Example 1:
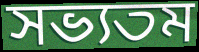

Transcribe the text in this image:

সভ্যতম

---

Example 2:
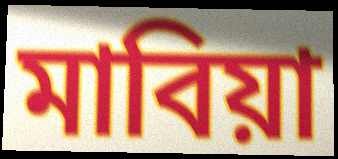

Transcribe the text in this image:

মাবিয়া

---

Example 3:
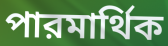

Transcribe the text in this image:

পারমার্থিক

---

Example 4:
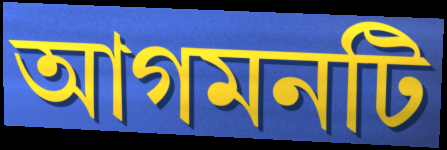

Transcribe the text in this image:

আগমনটি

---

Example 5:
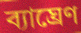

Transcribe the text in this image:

ব্যাঘ্রেণ